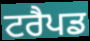
ਟਰੈਪਡ